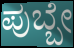
ಪುಬ್ಬೇ